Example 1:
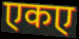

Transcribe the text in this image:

एकए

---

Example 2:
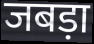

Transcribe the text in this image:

जबड़ा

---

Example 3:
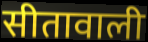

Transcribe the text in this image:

सीतावाली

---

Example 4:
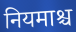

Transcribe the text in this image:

नियमाश्च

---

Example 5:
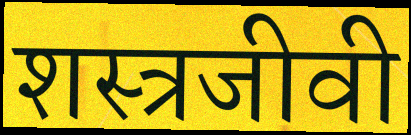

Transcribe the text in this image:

शस्त्रजीवी